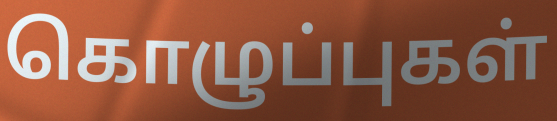
கொழுப்புகள்